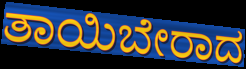
ತಾಯಿಬೇರಾದ